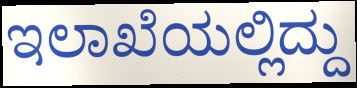
ಇಲಾಖೆಯಲ್ಲಿದ್ದು